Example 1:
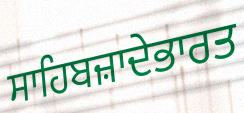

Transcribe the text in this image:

ਸਾਹਿਬਜ਼ਾਦੇਭਾਰਤ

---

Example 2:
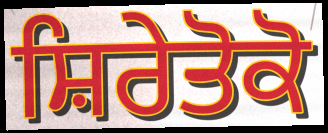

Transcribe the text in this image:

ਸ਼ਿਰੇਤੋਕੋ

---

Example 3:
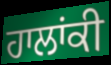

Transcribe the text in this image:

ਹਾਲਾਂਕੀ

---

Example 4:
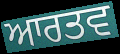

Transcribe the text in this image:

ਆਰਤਵ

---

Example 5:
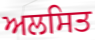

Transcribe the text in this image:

ਅਲਸਿਤ